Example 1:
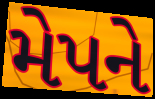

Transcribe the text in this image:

મેપને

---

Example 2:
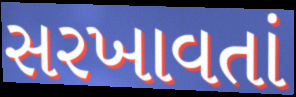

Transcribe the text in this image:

સરખાવતાં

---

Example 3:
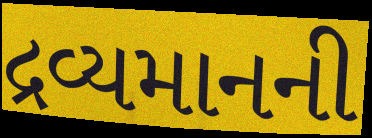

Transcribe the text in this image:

દ્રવ્યમાનની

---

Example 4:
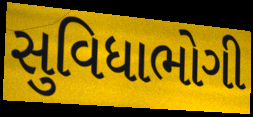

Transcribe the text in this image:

સુવિધાભોગી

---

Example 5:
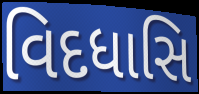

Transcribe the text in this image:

વિદધાસિ